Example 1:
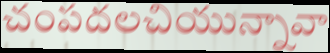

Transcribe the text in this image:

చంపదలచియున్నావా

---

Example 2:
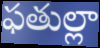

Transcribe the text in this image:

ఫతుల్లా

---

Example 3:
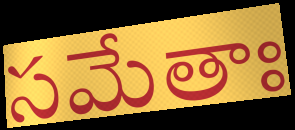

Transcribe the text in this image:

సమేతాః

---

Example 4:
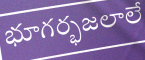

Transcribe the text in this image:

భూగర్భజలాలే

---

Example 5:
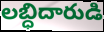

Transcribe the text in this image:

లబ్ధిదారుడి